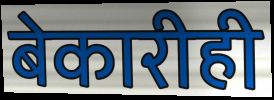
बेकारीही